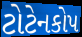
ટોટેનકોપ